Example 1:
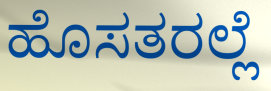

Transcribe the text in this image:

ಹೊಸತರಲ್ಲೆ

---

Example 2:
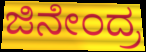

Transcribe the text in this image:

ಜಿನೇಂದ್ರ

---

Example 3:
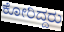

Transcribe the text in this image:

ಕೋರಿದ್ದರು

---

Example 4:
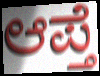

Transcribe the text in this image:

ಆಪ್ತೆ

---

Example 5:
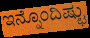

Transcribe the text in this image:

ಇನ್ನೊಂದಿಷ್ಟು